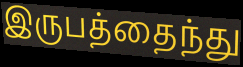
இருபத்தைந்து